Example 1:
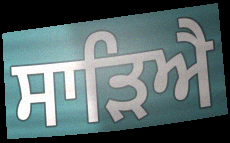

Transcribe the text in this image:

ਸਾੜਿਐ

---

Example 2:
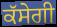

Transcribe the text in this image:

ਕੱਸੇਗੀ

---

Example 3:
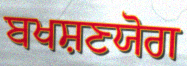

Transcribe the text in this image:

ਬਖਸ਼ਣਯੋਗ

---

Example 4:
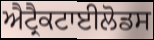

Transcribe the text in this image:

ਐਟ੍ਰੈਕਟਾਈਲੋਡਸ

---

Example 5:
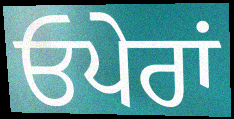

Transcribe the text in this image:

ਓਪੇਰਾਂ